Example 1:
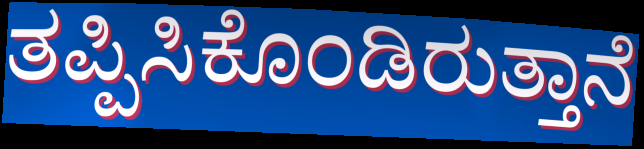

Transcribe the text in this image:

ತಪ್ಪಿಸಿಕೊಂಡಿರುತ್ತಾನೆ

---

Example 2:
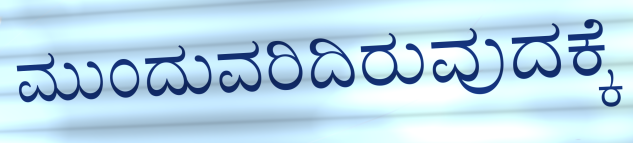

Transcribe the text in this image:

ಮುಂದುವರಿದಿರುವುದಕ್ಕೆ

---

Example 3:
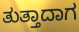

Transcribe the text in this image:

ತುತ್ತಾದಾಗ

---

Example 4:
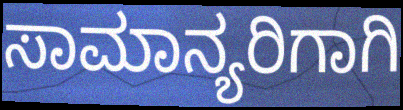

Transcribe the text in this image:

ಸಾಮಾನ್ಯರಿಗಾಗಿ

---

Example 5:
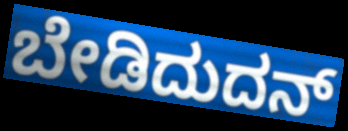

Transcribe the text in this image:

ಬೇಡಿದುದನ್